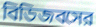
বিডিজবসের